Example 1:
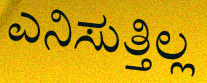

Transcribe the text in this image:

ಎನಿಸುತ್ತಿಲ್ಲ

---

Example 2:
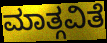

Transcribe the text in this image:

ಮಾತ್ಗವಿತೆ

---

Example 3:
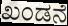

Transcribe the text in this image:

ಖಂಡನೆ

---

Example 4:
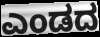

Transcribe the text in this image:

ಎಂಡದ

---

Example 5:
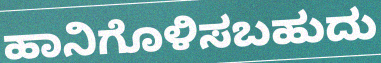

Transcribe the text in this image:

ಹಾನಿಗೊಳಿಸಬಹುದು